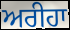
ਅਰੀਹਾ